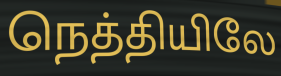
நெத்தியிலே